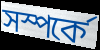
সস্পর্কে